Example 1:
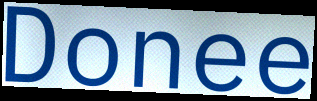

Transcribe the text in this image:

Donee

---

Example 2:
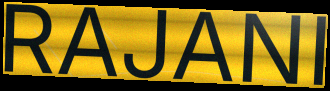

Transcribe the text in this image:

RAJANI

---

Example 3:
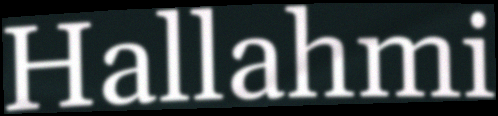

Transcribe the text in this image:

Hallahmi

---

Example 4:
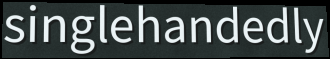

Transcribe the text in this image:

singlehandedly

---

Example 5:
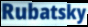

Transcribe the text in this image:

Rubatsky